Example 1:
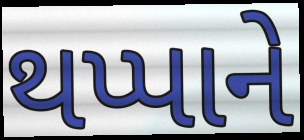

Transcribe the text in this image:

થપ્પાને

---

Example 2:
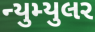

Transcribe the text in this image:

ન્યુમ્યુલર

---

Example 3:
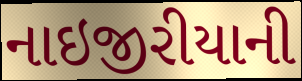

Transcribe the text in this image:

નાઇજીરીયાની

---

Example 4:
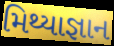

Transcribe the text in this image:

મિથ્યાજ્ઞાન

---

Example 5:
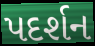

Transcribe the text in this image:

પદર્શન